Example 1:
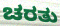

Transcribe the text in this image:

ಚರತು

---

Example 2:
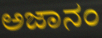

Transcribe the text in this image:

ಅಜಾನಂ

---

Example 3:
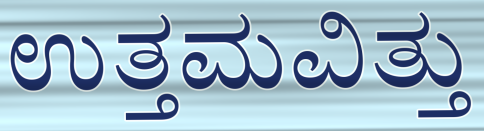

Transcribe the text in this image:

ಉತ್ತಮವಿತ್ತು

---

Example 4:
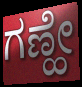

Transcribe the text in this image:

ಗಣ್ಹೇ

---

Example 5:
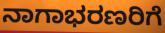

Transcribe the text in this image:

ನಾಗಾಭರಣರಿಗೆ